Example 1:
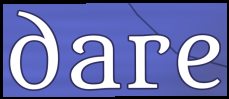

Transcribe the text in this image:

dare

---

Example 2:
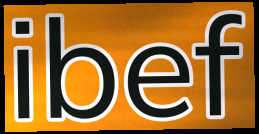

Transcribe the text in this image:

ibef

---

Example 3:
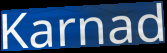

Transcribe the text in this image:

Karnad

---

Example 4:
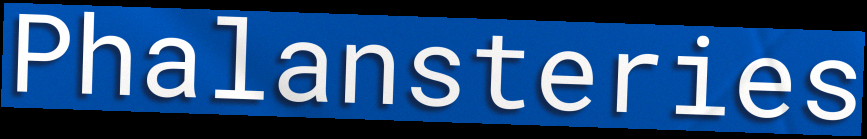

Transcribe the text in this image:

Phalansteries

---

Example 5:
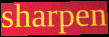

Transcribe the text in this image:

sharpen